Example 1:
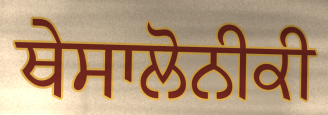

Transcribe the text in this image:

ਥੇਸਾਲੋਨੀਕੀ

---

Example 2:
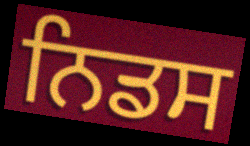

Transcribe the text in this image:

ਨਿਡਸ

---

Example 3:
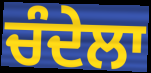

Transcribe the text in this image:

ਚੰਦੇਲਾ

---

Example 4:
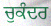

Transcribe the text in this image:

ਚੁਕੰਦਰ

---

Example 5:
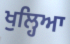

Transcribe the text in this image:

ਖੁਲ੍ਹਿਆ